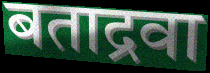
बताद्रवा